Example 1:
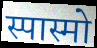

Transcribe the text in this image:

स्पास्मो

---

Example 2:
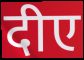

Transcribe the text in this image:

दीए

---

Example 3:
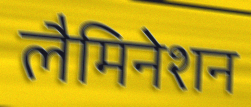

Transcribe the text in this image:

लैमिनेशन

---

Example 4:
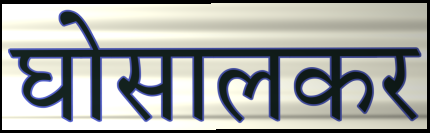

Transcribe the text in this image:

घोसालकर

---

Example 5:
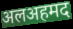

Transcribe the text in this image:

अलअहमद